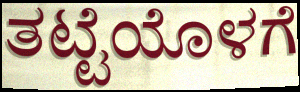
ತಟ್ಟೆಯೊಳಗೆ